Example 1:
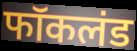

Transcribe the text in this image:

फॉकलंड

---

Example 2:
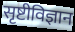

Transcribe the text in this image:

सृष्टीविज्ञान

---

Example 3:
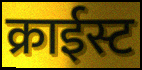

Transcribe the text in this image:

क्राईस्ट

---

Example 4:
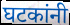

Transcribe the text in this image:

घटकांनी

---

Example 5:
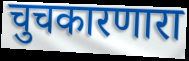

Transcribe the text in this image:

चुचकारणारा